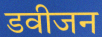
डवीजन